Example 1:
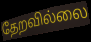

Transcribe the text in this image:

தேறவில்லை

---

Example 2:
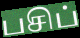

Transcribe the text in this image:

பசிப்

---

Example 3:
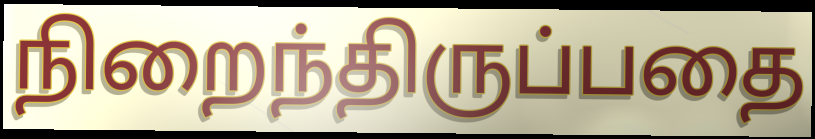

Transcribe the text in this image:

நிறைந்திருப்பதை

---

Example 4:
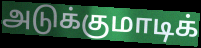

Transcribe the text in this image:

அடுக்குமாடிக்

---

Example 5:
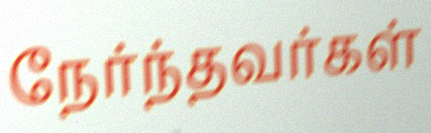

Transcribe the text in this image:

நேர்ந்தவர்கள்